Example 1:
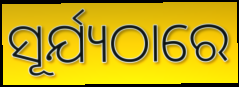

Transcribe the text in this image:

ସୂର୍ଯ୍ୟଠାରେ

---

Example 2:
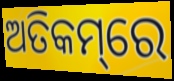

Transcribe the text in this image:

ଅତିକମ୍‌ରେ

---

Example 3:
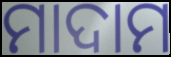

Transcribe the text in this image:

ମାଦାମ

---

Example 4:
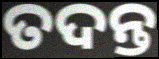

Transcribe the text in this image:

ତଦନ୍ତ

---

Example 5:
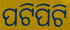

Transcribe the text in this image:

ପଟିପିଟି